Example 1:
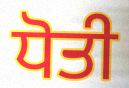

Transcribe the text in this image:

ਧੋਤੀ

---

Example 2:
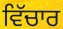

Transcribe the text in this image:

ਵਿੱਚਾਰ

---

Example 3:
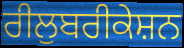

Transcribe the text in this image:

ਰੀਲੁਬਰੀਕੇਸ਼ਨ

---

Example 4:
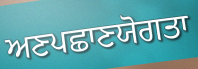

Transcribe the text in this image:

ਅਣਪਛਾਣਯੋਗਤਾ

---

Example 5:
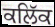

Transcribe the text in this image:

ਕਲਿੱਕ